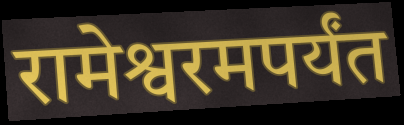
रामेश्वरमपर्यंत